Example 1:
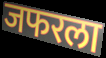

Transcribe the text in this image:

जफरला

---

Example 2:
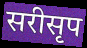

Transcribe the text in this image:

सरीसृप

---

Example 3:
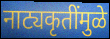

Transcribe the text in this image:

नाट्यकृतींमुळे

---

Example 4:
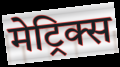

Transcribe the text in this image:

मेट्रिक्‍स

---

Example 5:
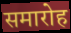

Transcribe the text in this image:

समारोह